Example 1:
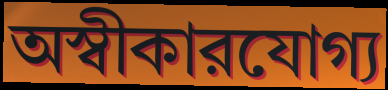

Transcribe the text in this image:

অস্বীকারযোগ্য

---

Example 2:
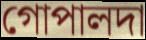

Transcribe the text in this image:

গোপালদা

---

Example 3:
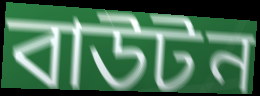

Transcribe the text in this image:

বাউটন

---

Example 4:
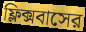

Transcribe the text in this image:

ফ্লিক্সবাসের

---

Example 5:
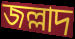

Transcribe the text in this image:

জল্লাদ